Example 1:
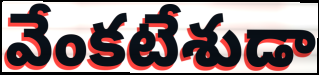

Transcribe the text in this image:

వేంకటేశుడా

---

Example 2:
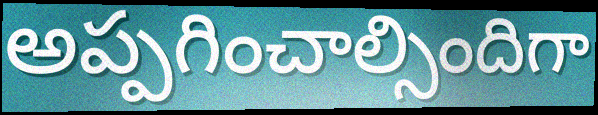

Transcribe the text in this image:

అప్పగించాల్సిందిగా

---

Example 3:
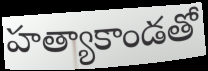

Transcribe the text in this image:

హత్యాకాండతో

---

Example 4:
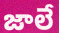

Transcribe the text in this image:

జాలే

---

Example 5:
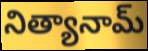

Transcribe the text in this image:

నిత్యానామ్